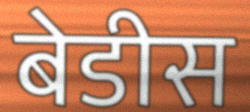
बेडीस